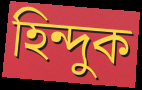
হিন্দুক